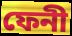
ফেনী